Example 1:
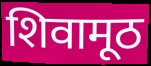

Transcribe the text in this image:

शिवामूठ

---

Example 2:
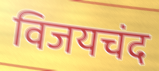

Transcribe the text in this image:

विजयचंद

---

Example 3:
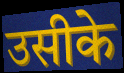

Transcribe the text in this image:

उसीके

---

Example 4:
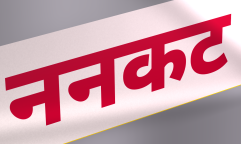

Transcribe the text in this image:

ननकट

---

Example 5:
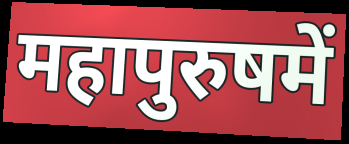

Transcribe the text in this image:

महापुरुषमें